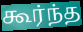
கூர்ந்த